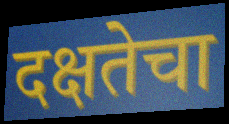
दक्षतेचा